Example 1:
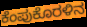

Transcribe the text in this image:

ಕೆಂಪುಕೊರಳಿನ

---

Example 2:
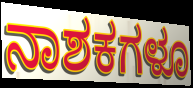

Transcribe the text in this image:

ನಾಶಕಗಳೂ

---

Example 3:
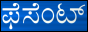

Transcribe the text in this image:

ಫೆಸೆಂಟ್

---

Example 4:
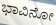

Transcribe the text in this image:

ಭಾವಿನೋ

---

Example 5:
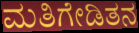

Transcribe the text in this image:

ಮತಿಗೇಡಿತನ